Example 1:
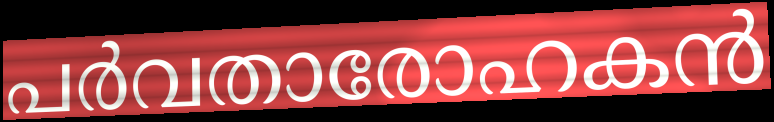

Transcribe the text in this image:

പർവതാരോഹകൻ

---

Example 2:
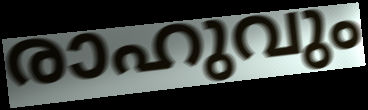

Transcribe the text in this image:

രാഹുവും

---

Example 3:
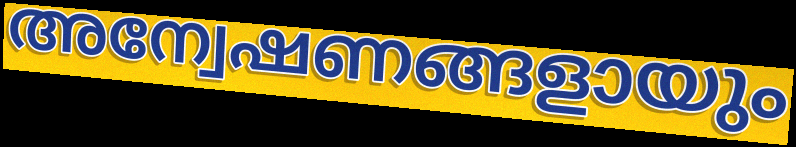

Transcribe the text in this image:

അന്വേഷണങ്ങളായും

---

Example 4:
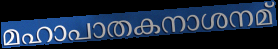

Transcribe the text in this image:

മഹാപാതകനാശനമ്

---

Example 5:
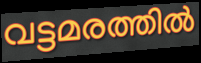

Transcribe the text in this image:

വട്ടമരത്തിൽ